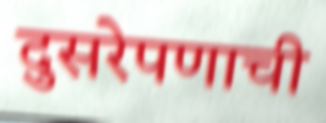
दुसरेपणाची